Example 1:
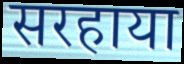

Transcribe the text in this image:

सरहाया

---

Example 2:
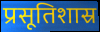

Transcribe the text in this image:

प्रसूतिशास्र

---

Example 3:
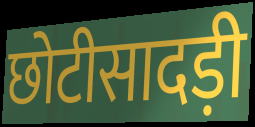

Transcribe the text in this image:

छोटीसादड़ी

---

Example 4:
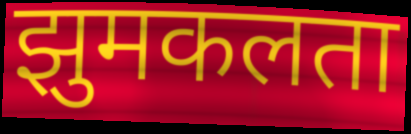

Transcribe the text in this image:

झुमकलता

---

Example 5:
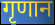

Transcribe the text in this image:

गृणान